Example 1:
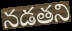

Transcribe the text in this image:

నడతని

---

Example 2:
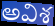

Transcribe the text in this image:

అవిశ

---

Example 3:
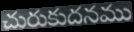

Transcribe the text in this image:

చురుకుదనము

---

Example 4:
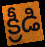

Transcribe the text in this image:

క్రీడి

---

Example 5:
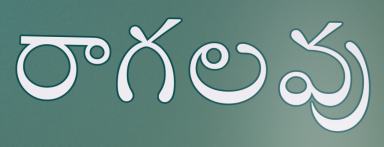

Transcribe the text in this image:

రాగలవు